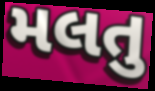
મલતુ